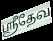
ஸ்ரீதேவ